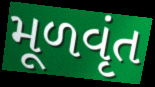
મૂળવૃંત